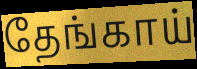
தேங்காய்